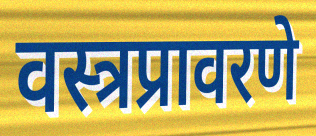
वस्त्रप्रावरणे